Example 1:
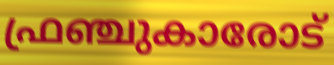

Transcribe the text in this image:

ഫ്രഞ്ചുകാരോട്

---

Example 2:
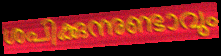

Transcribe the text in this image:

ശപിക്കുന്നുണ്ടാവും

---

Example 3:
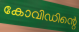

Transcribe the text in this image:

കോവിഡിന്റെ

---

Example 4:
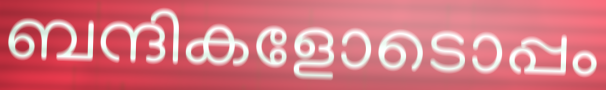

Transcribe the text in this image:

ബന്ദികളോടൊപ്പം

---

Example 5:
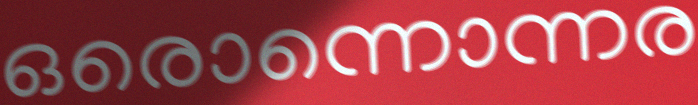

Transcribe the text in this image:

ഒരൊന്നൊന്നര